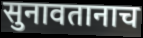
सुनावतानाच